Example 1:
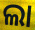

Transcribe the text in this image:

ଲା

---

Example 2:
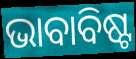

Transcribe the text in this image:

ଭାବାବିଷ୍ଟ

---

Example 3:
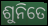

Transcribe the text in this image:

ଶୁନିତେ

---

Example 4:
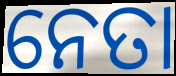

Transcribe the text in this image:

ନେତା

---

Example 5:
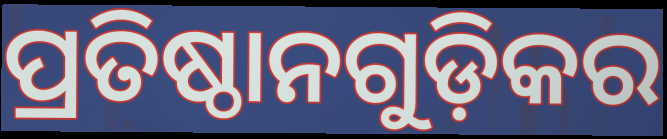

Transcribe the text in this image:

ପ୍ରତିଷ୍ଠାନଗୁଡ଼ିକର